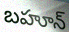
బహూన్